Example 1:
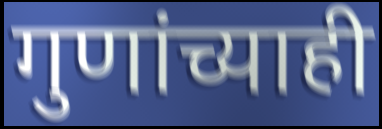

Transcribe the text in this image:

गुणांच्याही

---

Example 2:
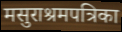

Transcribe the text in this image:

मसुराश्रमपत्रिका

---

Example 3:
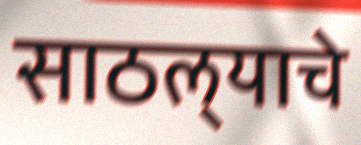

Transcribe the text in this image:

साठल्याचे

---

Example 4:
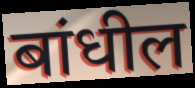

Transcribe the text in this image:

बांधील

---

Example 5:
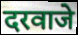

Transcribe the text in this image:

दरवाजे